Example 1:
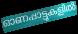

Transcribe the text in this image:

ഓണപ്പാട്ടുകളിൽ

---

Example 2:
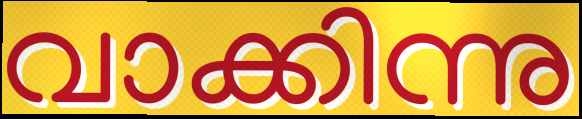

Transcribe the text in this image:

വാക്കിന്നു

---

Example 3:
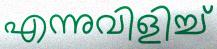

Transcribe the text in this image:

എന്നുവിളിച്ച്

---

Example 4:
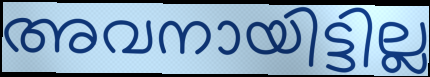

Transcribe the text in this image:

അവനായിട്ടില്ല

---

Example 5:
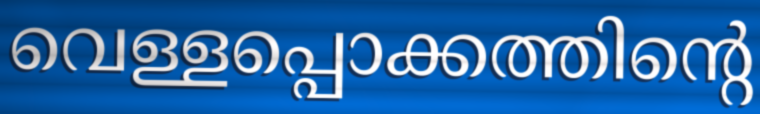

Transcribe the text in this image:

വെള്ളപ്പൊക്കത്തിന്റെ